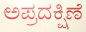
ಅಪ್ರದಕ್ಷಿಣೆ